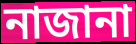
নাজানা